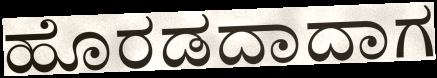
ಹೊರಡದಾದಾಗ